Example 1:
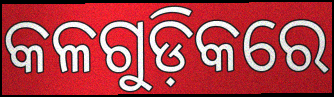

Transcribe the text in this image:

କଳଗୁଡ଼ିକରେ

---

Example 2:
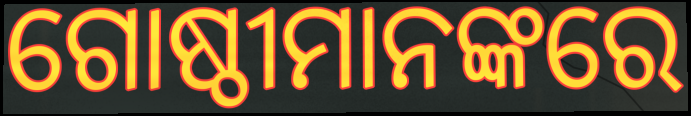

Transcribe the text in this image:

ଗୋଷ୍ଠୀମାନଙ୍କରେ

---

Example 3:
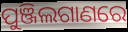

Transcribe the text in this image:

ପୁଞ୍ଜିଲଗାଣରେ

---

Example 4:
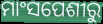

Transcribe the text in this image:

ମାଂସପେଶୀରୁ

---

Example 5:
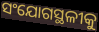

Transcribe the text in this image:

ସଂଯୋଗସ୍ଥଳୀକୁ